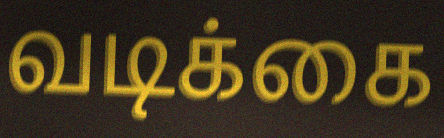
வடிக்கை